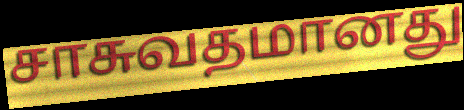
சாசுவதமானது